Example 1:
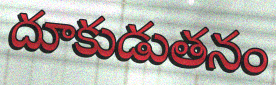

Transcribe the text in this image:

దూకుడుతనం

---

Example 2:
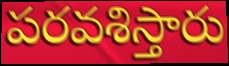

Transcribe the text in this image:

పరవశిస్తారు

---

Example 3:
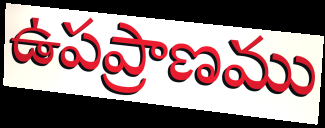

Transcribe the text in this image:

ఉపప్రాణము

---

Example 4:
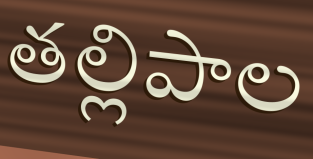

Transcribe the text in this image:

తల్లిపాల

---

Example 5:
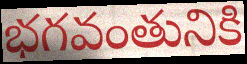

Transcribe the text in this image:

భగవంతునికి